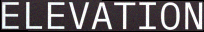
ELEVATION